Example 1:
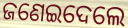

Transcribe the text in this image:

ଜଣେଇଦେଲେ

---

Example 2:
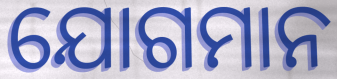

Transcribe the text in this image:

ଯୋଗମାନ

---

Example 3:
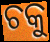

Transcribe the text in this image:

ଚକୁ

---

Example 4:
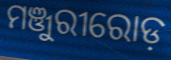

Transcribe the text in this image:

ମଞ୍ଜୁରୀରୋଡ଼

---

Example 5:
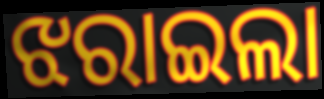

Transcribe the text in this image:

ଝରାଇଲା